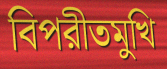
বিপরীতমুখি